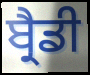
ਬ੍ਰੈਡੀ